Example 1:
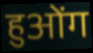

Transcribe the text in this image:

हुओंग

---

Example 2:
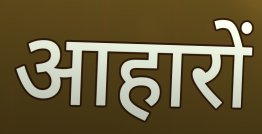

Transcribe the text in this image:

आहारों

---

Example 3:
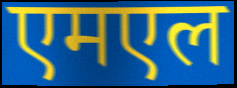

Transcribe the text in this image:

एमएल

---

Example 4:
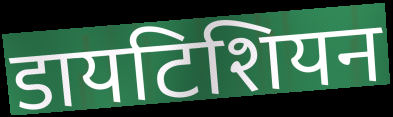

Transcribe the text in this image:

डायटिशियन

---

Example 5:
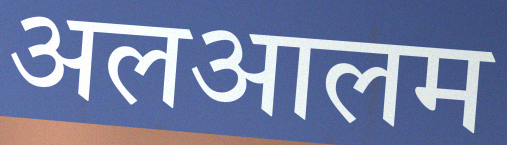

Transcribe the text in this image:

अलआलम